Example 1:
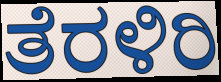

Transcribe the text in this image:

ತೆರಳಿರಿ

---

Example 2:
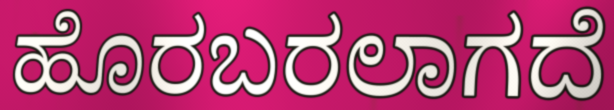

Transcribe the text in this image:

ಹೊರಬರಲಾಗದೆ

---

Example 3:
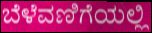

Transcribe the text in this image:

ಬೆಳೆವಣಿಗೆಯಲ್ಲಿ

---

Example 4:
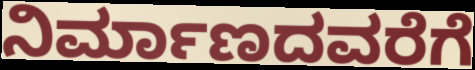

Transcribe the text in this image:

ನಿರ್ಮಾಣದವರೆಗೆ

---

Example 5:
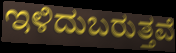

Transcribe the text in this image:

ಇಳಿದುಬರುತ್ತವೆ